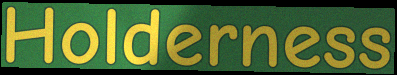
Holderness